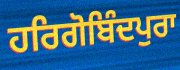
ਹਰਿਗੋਬਿੰਦਪੁਰਾ